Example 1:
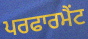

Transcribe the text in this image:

ਪਰਫਾਰਮੈਂਟ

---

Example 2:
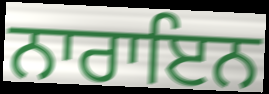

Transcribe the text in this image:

ਨਾਰਾਇਨ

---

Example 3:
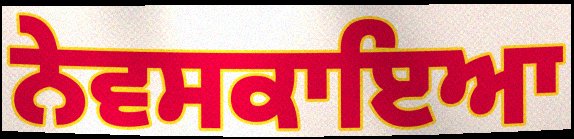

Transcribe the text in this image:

ਨੇਵਸਕਾਇਆ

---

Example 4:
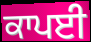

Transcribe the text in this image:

ਕਾਪਈ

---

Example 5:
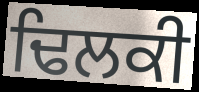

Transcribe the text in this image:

ਢਿਲਕੀ